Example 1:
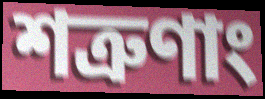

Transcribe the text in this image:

শত্রুণাং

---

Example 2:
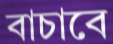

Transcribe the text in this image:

বাচাবে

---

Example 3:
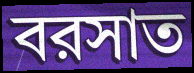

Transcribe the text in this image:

বরসাত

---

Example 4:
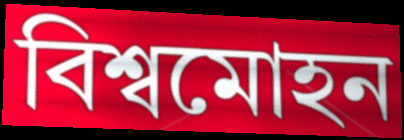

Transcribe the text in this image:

বিশ্বমোহন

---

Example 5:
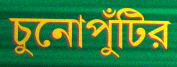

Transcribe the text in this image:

চুনোপুঁটির